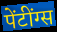
पेंटींग्स